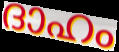
ദാഹം